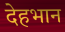
देहभान